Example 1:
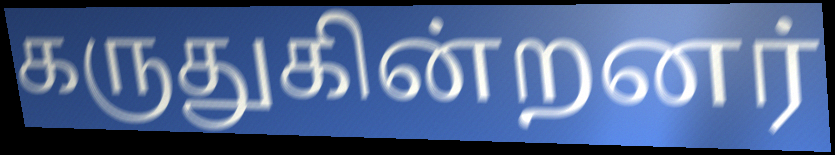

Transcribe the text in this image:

கருதுகின்றனர்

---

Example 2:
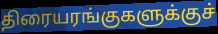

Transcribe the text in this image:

திரையரங்குகளுக்குச்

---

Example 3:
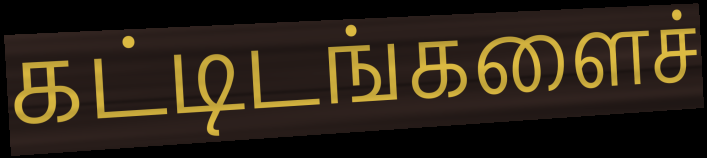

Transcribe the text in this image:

கட்டிடங்களைச்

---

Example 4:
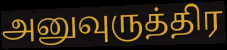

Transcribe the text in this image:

அனுவுருத்திர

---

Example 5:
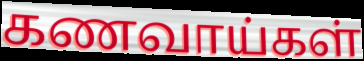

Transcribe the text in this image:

கணவாய்கள்